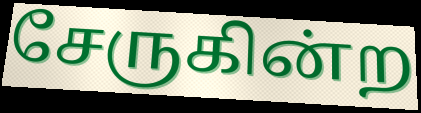
சேருகின்ற